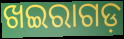
ଖଇରାଗଡ଼